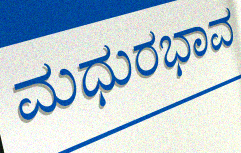
ಮಧುರಭಾವ